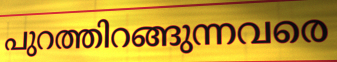
പുറത്തിറങ്ങുന്നവരെ